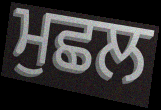
ਮੁਛਲ